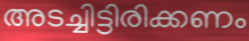
അടച്ചിട്ടിരിക്കണം